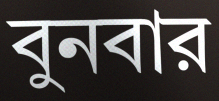
বুনবার